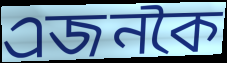
এজনকৈ